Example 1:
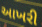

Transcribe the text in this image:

આખરી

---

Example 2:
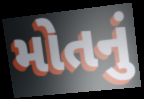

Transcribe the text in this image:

મોતનું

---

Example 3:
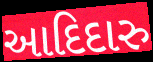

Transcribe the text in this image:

આદિદારુ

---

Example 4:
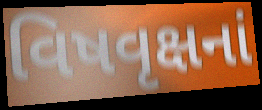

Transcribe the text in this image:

વિષવૃક્ષનાં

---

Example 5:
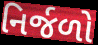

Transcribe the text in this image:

નિર્જળો